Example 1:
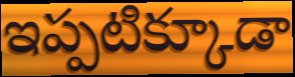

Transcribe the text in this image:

ఇప్పటిక్కూడా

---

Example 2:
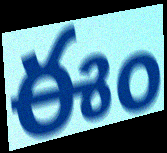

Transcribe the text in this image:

ఈం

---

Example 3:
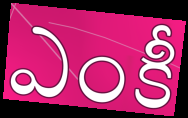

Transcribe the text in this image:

ఎంకీ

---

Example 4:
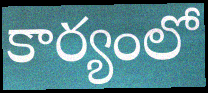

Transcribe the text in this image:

కార్యంలో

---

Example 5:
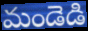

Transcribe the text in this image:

మండెడి